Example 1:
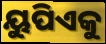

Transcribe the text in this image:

ୟୁପିଏକୁ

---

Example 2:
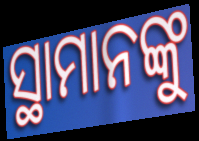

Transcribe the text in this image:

ସ୍ଥାମାନଙ୍କୁ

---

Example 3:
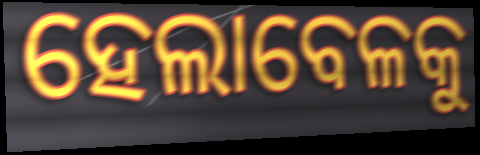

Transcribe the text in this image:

ହେଲାବେଳକୁ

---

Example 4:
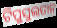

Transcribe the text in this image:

ଟିପୁସୁଲତାନ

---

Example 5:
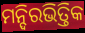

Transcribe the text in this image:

ମନ୍ଦିରଭିତ୍ତିକ